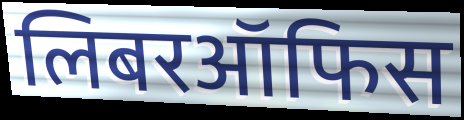
लिबरऑफिस